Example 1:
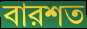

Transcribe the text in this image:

বারশত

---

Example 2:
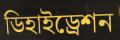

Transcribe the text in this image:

ডিহাইড্রেশন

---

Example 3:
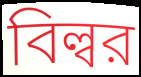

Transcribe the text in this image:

বিল্বর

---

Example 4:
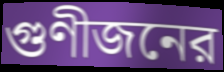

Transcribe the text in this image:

গুণীজনের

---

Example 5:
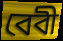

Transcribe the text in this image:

বেবী